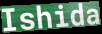
Ishida